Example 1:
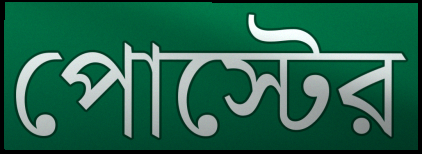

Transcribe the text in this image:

পোস্টের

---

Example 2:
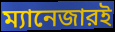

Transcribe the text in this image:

ম্যানেজারই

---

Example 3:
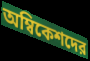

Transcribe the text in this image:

অম্বিকেশদের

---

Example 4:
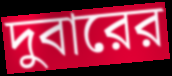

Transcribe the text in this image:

দুবারের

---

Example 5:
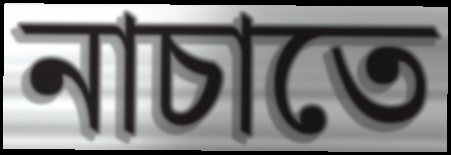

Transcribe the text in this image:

নাচাতে